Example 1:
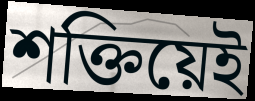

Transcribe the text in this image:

শক্তিয়েই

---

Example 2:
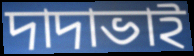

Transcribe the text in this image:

দাদাভাই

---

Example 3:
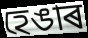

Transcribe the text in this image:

হেঙাৰ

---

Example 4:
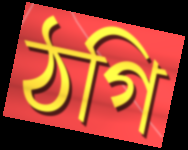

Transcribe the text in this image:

ঠগি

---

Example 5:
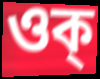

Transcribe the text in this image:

ওক্